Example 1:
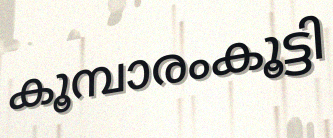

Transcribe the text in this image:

കൂമ്പാരംകൂട്ടി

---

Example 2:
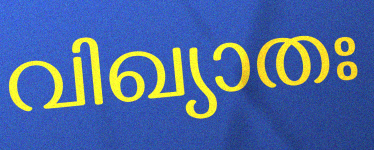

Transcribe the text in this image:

വിഖ്യാതഃ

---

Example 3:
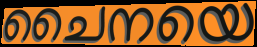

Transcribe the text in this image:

ചൈനയെ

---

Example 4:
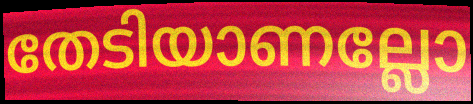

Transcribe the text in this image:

തേടിയാണല്ലോ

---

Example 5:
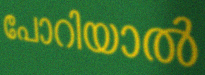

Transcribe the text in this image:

പോറിയാൽ